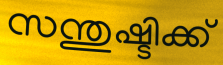
സന്തുഷ്ടിക്ക്